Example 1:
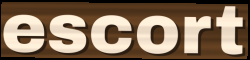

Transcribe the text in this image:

escort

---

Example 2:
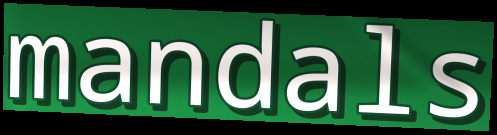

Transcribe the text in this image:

mandals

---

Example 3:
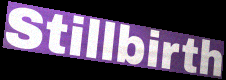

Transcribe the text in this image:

Stillbirth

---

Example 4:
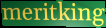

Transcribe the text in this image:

meritking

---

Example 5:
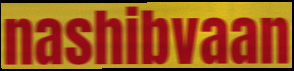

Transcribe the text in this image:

nashibvaan